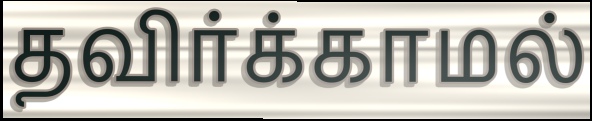
தவிர்க்காமல்